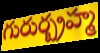
గురుర్బ్రహ్మ